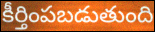
కీర్తింపబడుతుంది